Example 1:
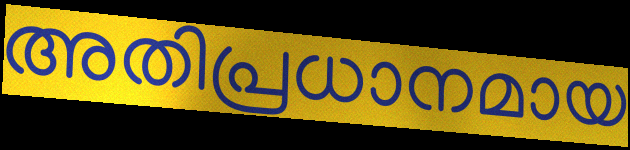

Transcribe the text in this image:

അതിപ്രധാനമായ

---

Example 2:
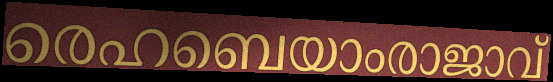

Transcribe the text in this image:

രെഹബെയാംരാജാവ്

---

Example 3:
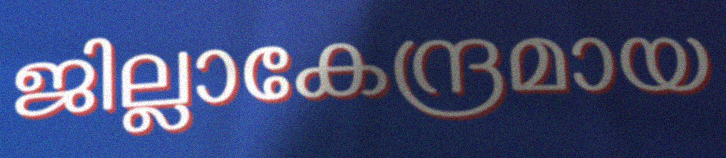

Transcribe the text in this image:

ജില്ലാകേന്ദ്രമായ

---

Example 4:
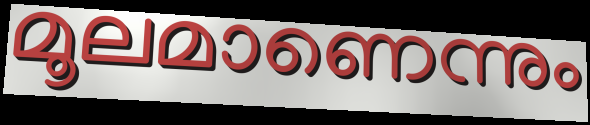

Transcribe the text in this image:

മൂലമാണെന്നും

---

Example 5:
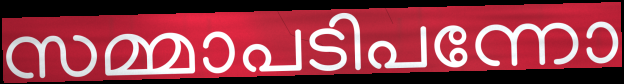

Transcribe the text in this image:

സമ്മാപടിപന്നോ